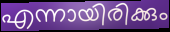
എന്നായിരിക്കും